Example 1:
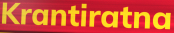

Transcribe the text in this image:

Krantiratna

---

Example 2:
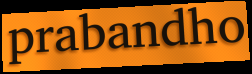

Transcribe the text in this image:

prabandho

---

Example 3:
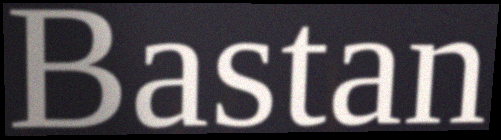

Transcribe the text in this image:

Bastan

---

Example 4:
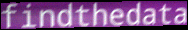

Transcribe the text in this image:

findthedata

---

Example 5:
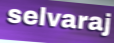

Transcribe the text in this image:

selvaraj